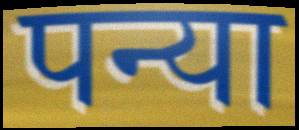
पन्या